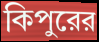
কিপুরের